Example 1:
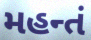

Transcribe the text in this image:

મહન્તં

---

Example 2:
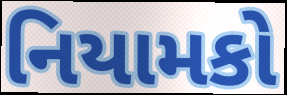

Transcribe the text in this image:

નિયામકો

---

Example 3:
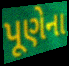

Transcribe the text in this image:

પૂણેના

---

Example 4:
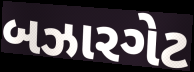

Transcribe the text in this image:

બઝારગેટ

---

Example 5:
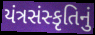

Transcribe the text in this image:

યંત્રસંસ્કૃતિનું